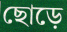
ছোড়ে